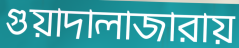
গুয়াদালাজারায়